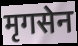
मृगसेन